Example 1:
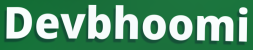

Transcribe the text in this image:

Devbhoomi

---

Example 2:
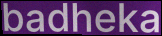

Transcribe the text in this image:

badheka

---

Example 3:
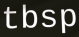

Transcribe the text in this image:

tbsp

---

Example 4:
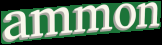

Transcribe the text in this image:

ammon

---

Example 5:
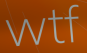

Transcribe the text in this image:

wtf